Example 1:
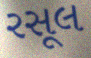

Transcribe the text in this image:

રસૂલ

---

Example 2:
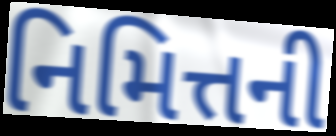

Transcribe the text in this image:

નિમિત્તની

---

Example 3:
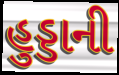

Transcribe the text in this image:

હુડ્ડાની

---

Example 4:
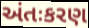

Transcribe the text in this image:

અંતઃકરણ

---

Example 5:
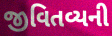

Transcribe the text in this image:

જીવિતવ્યની